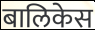
बालिकेस